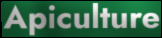
Apiculture